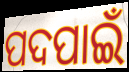
ପଦପାଇଁ